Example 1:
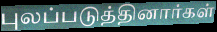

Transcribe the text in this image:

புலப்படுத்தினார்கள்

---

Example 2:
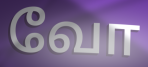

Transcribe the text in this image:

வோ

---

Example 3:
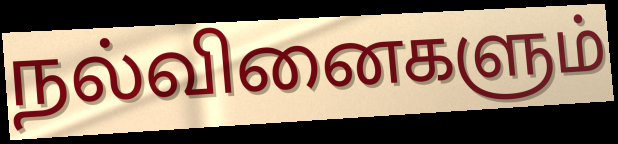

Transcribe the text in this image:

நல்வினைகளும்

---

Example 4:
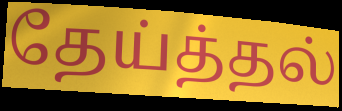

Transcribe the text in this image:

தேய்த்தல்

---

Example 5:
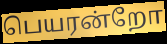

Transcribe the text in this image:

பெயரன்றோ